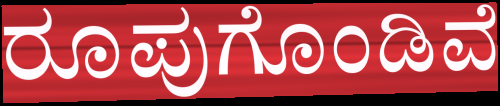
ರೂಪುಗೊಂಡಿವೆ